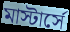
মাস্টার্সে